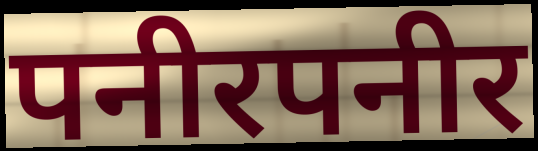
पनीरपनीर